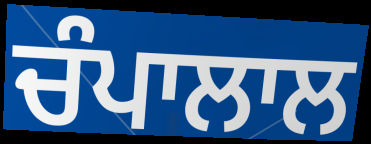
ਚੰਪਾਲਾਲ